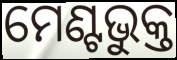
ମେଣ୍ଟଭୁକ୍ତ